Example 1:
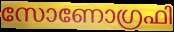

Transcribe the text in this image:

സോണോഗ്രഫി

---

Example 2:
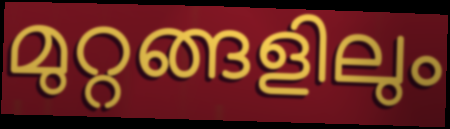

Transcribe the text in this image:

മുറ്റങ്ങളിലും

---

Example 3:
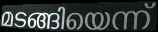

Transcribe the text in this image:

മടങ്ങിയെന്ന്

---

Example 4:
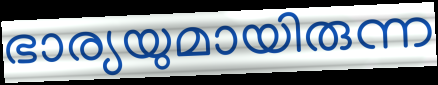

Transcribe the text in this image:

ഭാര്യയുമായിരുന്ന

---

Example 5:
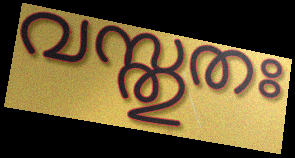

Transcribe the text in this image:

വസ്തുതഃ